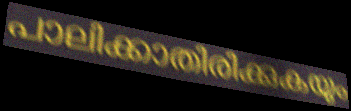
പാലിക്കാതിരിക്കുകയും